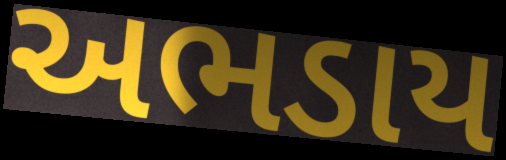
અભડાય